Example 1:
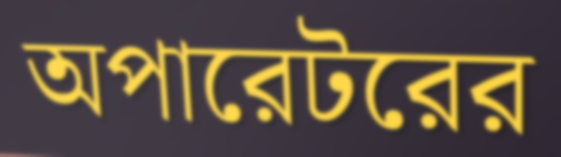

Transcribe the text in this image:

অপারেটরের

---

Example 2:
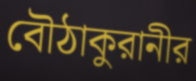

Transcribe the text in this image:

বৌঠাকুরানীর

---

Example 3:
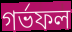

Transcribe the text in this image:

গর্ভফল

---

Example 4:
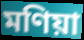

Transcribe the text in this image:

মণিয়া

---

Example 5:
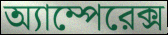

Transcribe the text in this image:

অ্যাম্পেরেক্স